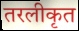
तरलीकृत